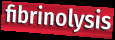
fibrinolysis